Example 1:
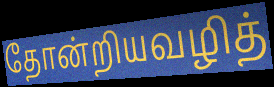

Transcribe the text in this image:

தோன்றியவழித்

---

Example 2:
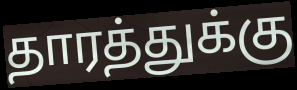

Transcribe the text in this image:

தாரத்துக்கு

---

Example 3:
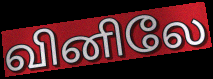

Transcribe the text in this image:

வினிலே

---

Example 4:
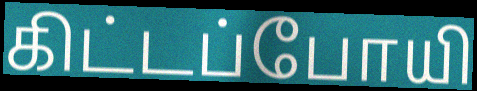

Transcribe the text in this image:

கிட்டப்போயி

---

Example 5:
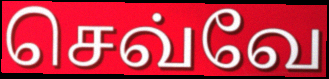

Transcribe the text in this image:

செவ்வே